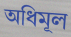
অধিমূল